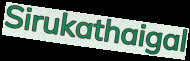
Sirukathaigal